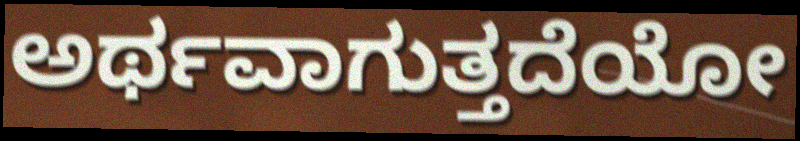
ಅರ್ಥವಾಗುತ್ತದೆಯೋ